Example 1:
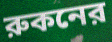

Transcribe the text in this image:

রুকনের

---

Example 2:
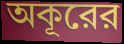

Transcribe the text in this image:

অকূরের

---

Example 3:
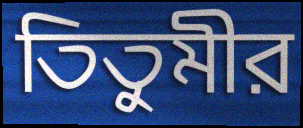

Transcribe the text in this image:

তিতুমীর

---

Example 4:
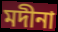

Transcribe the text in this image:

মদীনা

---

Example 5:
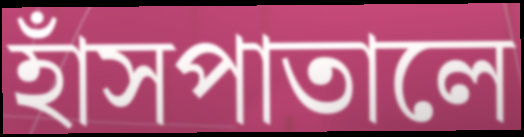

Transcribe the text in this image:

হাঁসপাতালে